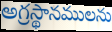
అగ్రస్థానములను